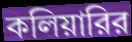
কলিয়ারির